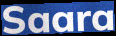
Saara